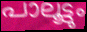
പാലൂട്ടും